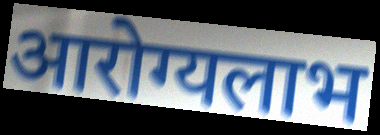
आरोग्यलाभ